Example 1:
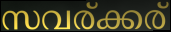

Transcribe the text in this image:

സവര്ക്കര്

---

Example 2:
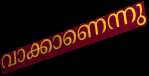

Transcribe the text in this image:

വാക്കാണെന്നു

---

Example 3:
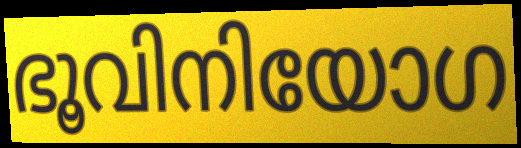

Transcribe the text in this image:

ഭൂവിനിയോഗ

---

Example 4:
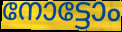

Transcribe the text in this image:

നോട്ടോം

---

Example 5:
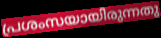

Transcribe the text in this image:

പ്രശംസയായിരുന്നതു